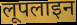
लूपलाइन